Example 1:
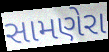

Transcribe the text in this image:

સામણેરા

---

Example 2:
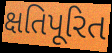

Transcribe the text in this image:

ક્ષતિપૂરિત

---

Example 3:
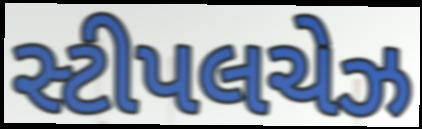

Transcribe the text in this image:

સ્ટીપલચેઝ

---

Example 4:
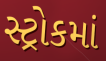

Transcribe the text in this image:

સ્ટ્રોકમાં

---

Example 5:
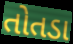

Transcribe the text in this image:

તોતડા